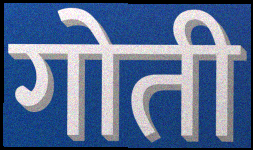
गोती